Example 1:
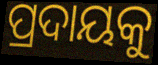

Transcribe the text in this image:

ପ୍ରଦାୟକୁ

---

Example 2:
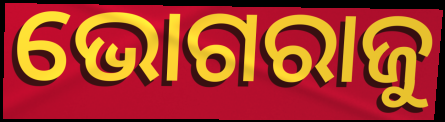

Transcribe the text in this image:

ଭୋଗରାଜୁ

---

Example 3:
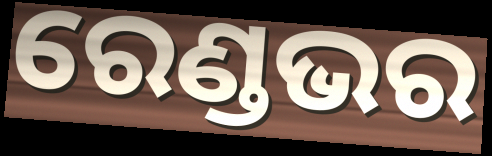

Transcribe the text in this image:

ରେଣ୍ଡଭର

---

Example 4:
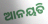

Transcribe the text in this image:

ଆନୟତି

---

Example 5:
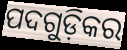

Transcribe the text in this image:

ପଦଗୁଡ଼ିକର